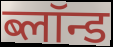
ब्लॉन्ड